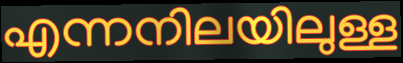
എന്നനിലയിലുള്ള